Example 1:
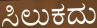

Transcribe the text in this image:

ಸಿಲುಕದು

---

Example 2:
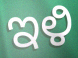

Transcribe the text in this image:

ಇಳಿ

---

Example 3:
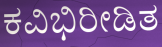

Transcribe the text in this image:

ಕವಿಭಿರೀಡಿತ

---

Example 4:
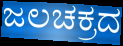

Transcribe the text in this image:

ಜಲಚಕ್ರದ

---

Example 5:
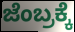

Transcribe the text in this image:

ಜೆಂಬ್ರಕ್ಕೆ